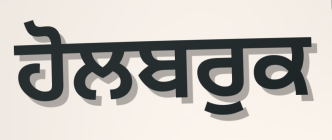
ਹੋਲਬਰੁਕ